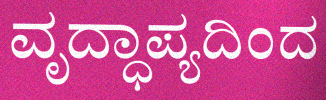
ವೃದ್ಧಾಪ್ಯದಿಂದ